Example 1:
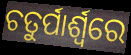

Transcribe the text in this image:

ଚତୁର୍ପାର୍ଶ୍ୱରେ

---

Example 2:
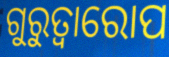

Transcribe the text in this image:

ଗୁରୁତ୍ବାରୋପ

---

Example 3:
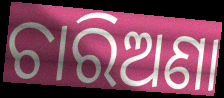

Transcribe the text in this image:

ଚାରିଅଣା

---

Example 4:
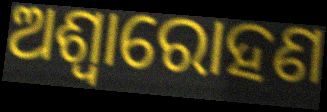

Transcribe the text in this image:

ଅଶ୍ୱାରୋହଣ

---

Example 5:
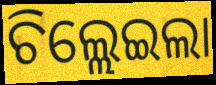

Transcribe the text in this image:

ଚିଲ୍ଲେଇଲା